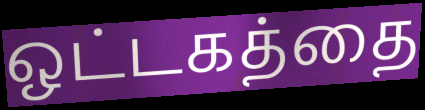
ஒட்டகத்தை